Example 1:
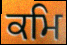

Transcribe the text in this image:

ਕਮਿ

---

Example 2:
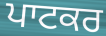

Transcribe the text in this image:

ਪਾਟਕਰ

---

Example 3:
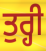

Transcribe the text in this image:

ਤੁਰ੍ਹੀ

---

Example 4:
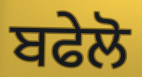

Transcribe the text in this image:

ਬਫੇਲੋ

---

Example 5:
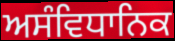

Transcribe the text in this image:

ਅਸੰਵਿਧਾਨਿਕ